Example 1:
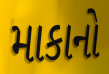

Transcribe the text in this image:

માકાનો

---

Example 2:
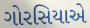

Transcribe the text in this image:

ગોરસિયાએ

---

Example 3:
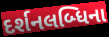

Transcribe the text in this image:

દર્શનલબ્ધિના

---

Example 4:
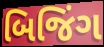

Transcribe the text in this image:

બિજિંગ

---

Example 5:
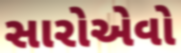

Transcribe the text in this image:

સારોએવો